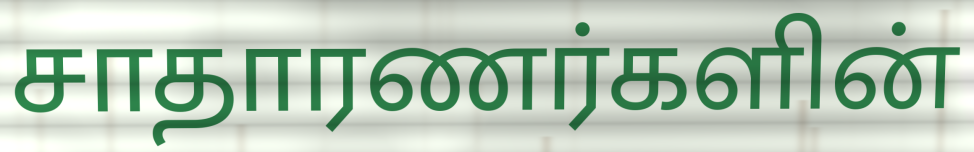
சாதாரணர்களின்